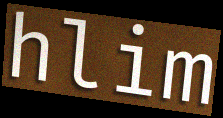
hlim